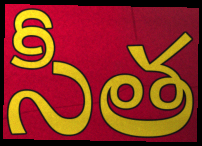
సీత